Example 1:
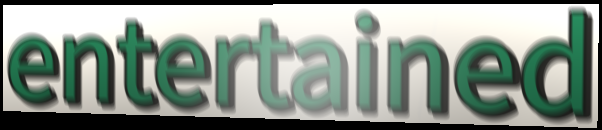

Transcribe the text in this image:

entertained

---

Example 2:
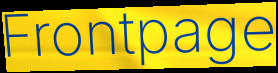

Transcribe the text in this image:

Frontpage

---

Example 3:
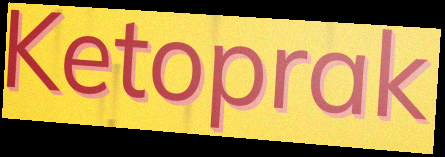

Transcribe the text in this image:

Ketoprak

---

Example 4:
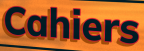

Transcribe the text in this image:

Cahiers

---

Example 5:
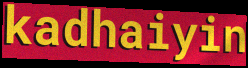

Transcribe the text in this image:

kadhaiyin